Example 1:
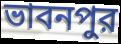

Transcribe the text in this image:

ভাবনপুর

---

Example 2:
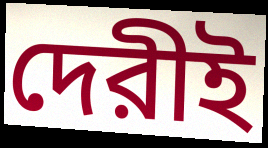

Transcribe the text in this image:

দেরীই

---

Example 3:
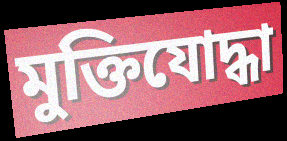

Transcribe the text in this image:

মুক্তিযোদ্ধা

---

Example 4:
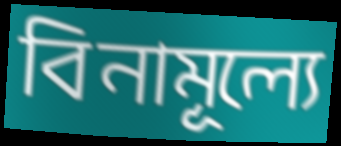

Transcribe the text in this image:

বিনামূল্যে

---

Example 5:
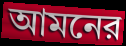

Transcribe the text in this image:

আমনের